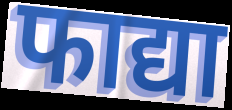
फाद्या